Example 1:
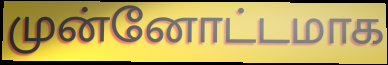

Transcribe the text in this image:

முன்னோட்டமாக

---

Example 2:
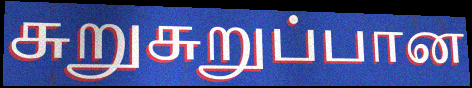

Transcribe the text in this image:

சுறுசுறுப்பான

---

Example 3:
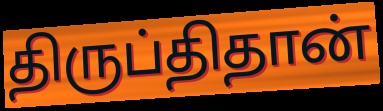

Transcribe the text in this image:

திருப்திதான்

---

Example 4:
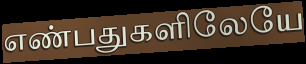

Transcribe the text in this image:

எண்பதுகளிலேயே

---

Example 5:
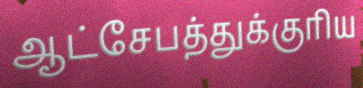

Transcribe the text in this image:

ஆட்சேபத்துக்குரிய